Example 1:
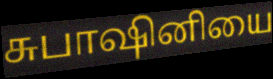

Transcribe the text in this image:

சுபாஷினியை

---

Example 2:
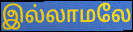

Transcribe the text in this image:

இல்லாமலே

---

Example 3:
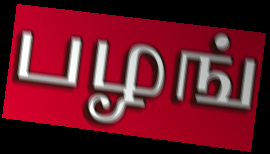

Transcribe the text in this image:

பழங்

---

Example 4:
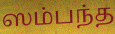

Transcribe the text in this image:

ஸம்பந்த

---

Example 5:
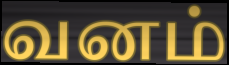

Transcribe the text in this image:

வனம்